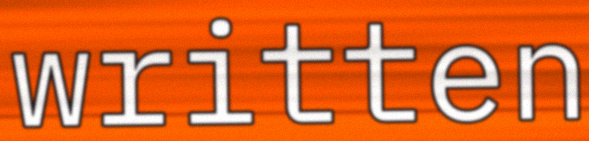
written